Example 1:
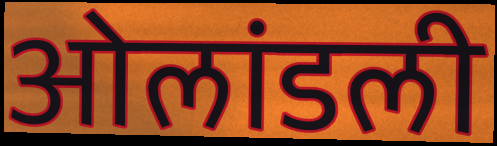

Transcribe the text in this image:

ओलांडली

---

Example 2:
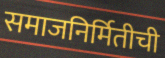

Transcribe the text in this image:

समाजनिर्मितीची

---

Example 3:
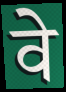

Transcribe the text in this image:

वे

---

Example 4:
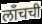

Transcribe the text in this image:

लाँचची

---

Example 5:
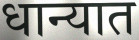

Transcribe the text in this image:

धान्यात